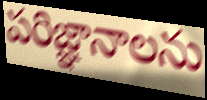
పరిజ్ఞానాలను